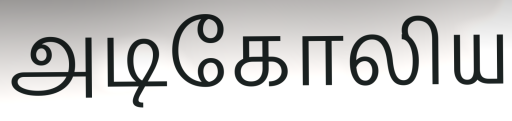
அடிகோலிய